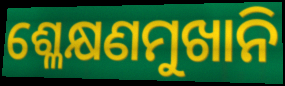
ଶ୍ଳେକ୍ଷଣମୁଖାନି